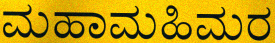
ಮಹಾಮಹಿಮರ